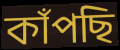
কাঁপছি